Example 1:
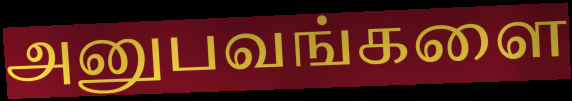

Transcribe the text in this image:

அனுபவங்களை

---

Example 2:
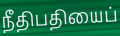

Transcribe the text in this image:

நீதிபதியைப்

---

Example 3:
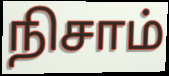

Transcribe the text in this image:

நிசாம்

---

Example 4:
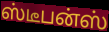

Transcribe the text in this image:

ஸ்டீபன்ஸ்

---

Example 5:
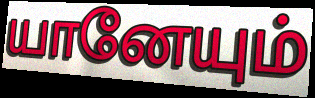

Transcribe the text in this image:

யானேயும்